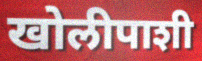
खोलीपाशी